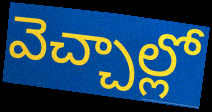
వెచ్చాల్లో